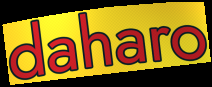
daharo